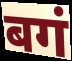
बगं